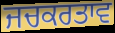
ਜਚਕਰਤਾਵ